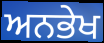
ਅਨਭੇਖ